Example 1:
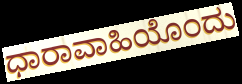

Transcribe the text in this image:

ಧಾರಾವಾಹಿಯೊಂದು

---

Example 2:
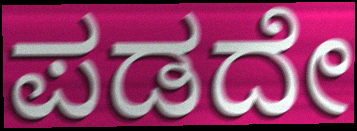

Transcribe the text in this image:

ಪಡದೇ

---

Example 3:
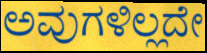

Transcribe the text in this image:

ಅವುಗಳಿಲ್ಲದೇ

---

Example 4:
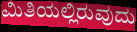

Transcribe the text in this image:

ಮಿತಿಯಲ್ಲಿರುವುದು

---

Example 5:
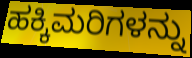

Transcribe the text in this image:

ಹಕ್ಕಿಮರಿಗಳನ್ನು